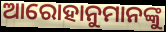
ଆରୋହାନୁମାନଙ୍କୁ